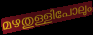
മഴതുള്ളിപോലും